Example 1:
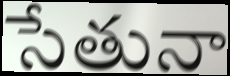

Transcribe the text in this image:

సేతునా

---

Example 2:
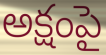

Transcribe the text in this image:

అక్షంపై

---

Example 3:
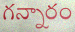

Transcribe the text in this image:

గన్నారం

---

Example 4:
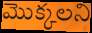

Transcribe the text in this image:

మొక్కలని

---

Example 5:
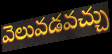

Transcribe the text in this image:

వెలువడవచ్చు